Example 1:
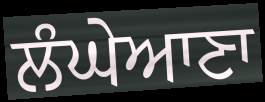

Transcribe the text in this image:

ਲੰਘੇਆਣਾ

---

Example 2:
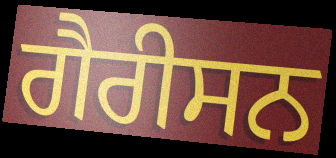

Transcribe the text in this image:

ਗੈਰੀਸਨ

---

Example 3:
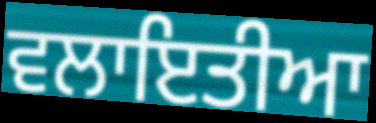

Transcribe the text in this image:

ਵਲਾਇਤੀਆ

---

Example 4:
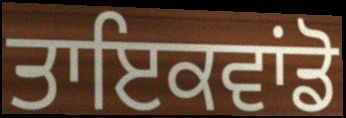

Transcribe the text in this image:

ਤਾਇਕਵਾਂਡੋ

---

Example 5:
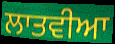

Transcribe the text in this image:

ਲਾਤਵੀਆ